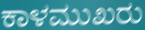
ಕಾಳಮುಖರು